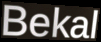
Bekal